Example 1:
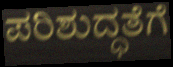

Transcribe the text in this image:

ಪರಿಶುದ್ಧತೆಗೆ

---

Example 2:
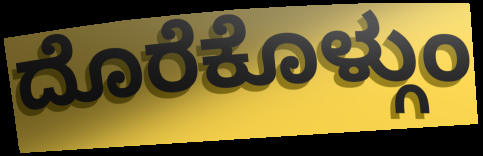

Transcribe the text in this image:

ದೊರೆಕೊಳ್ಗುಂ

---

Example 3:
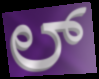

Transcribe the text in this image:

ಲ್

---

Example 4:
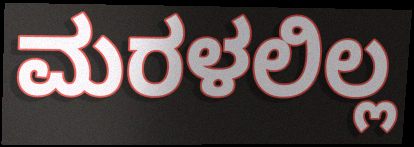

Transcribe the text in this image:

ಮರಳಲಿಲ್ಲ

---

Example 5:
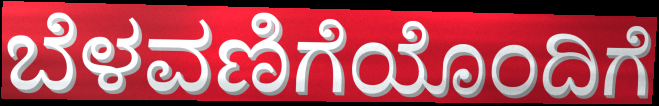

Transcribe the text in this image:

ಬೆಳವಣಿಗೆಯೊಂದಿಗೆ